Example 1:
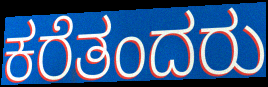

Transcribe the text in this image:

ಕರೆತಂದರು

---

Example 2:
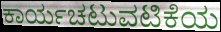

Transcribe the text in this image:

ಕಾರ್ಯಚಟುವಟಿಕೆಯ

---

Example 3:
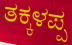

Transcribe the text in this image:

ತಕ್ಕಳಪ್ಪ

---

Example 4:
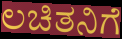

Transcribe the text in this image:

ಲಚಿತನಿಗೆ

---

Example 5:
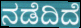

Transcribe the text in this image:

ನಡೆದಿದೆ